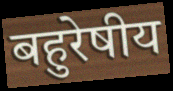
बहुरेषीय